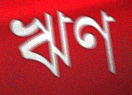
ঋণ